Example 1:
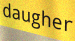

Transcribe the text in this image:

daugher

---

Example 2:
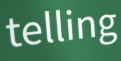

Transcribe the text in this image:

telling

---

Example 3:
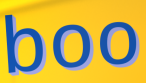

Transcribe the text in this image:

boo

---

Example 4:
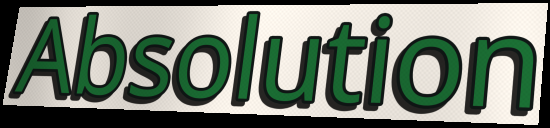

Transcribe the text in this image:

Absolution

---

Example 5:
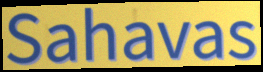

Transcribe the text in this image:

Sahavas